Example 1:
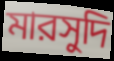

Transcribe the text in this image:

মারসুদি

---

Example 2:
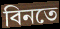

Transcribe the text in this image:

বিনতে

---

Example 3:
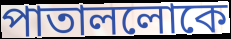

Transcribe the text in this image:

পাতাললোকে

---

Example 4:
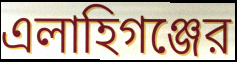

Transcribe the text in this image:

এলাহিগঞ্জের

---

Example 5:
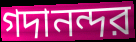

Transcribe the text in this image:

গদানন্দর